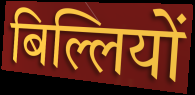
बिल्लियों